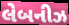
લેબનીઝ